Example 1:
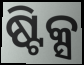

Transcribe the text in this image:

ଷ୍ଟିକ୍ସ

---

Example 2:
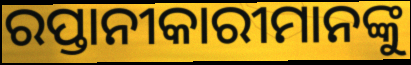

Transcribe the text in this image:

ରପ୍ତାନୀକାରୀମାନଙ୍କୁ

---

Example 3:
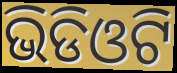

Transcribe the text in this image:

ଭିଡିଓଟି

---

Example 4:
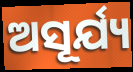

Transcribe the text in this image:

ଅସୂର୍ଯ୍ୟ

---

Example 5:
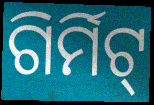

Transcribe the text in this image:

ଗିର୍ମିଟ୍